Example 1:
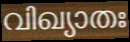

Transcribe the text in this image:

വിഖ്യാതഃ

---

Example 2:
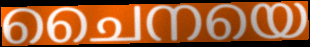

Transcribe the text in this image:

ചൈനയെ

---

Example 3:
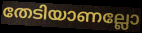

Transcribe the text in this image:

തേടിയാണല്ലോ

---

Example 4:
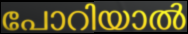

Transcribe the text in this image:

പോറിയാൽ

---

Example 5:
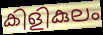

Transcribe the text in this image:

കിളികുലം